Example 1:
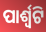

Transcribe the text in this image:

ପାର୍ଶ୍ଵଟି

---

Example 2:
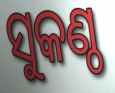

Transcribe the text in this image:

ସୁକଣ୍ଠ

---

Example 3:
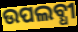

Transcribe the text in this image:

ଉପଲବ୍ଧୀ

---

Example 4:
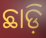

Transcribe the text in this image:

ଛାଡ଼ି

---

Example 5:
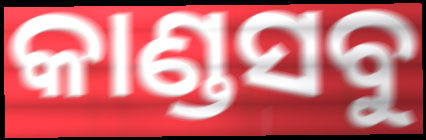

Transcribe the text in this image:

କାଣ୍ଡସବୁ